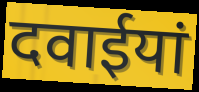
दवाईयां